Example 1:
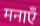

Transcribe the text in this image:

मनाएँ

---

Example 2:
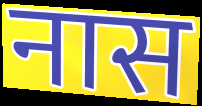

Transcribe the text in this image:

नास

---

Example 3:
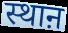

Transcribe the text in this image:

स्थाऩ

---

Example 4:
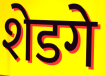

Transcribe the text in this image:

शेडगे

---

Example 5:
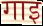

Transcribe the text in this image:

गाइ